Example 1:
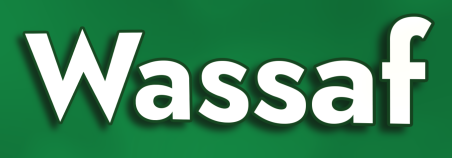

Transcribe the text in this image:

Wassaf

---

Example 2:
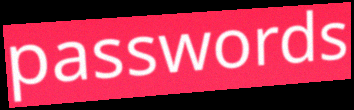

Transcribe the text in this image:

passwords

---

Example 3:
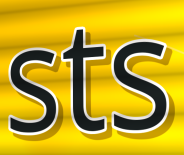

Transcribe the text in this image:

sts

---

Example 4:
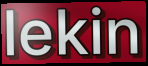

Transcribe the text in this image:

lekin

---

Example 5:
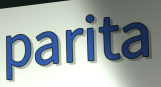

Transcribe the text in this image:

parita